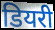
डियरी